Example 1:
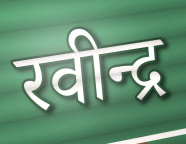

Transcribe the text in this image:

रवीन्द्र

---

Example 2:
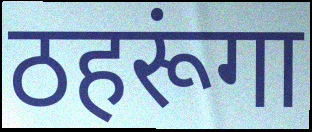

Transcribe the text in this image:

ठहरूंगा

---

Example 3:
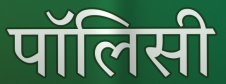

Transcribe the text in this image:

पॉलिसी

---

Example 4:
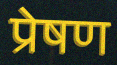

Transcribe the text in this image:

प्रेषण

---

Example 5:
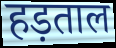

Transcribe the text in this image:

हड़ताल